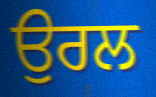
ਉਰਲ